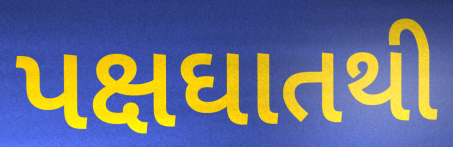
પક્ષઘાતથી